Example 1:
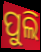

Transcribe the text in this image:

ପୁଲି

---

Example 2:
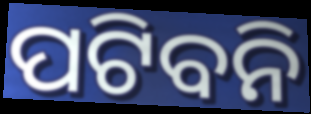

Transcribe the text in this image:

ପଟିବନି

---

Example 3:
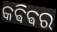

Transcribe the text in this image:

କଵିଵର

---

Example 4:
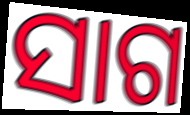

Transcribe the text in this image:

ସାଗ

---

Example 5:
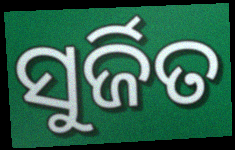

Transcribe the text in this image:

ସୁର୍ଜିତ